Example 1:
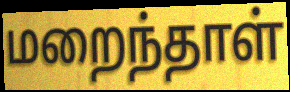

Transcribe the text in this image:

மறைந்தாள்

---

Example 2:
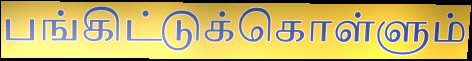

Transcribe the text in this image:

பங்கிட்டுக்கொள்ளும்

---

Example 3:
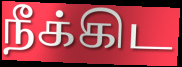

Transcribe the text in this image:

நீக்கிட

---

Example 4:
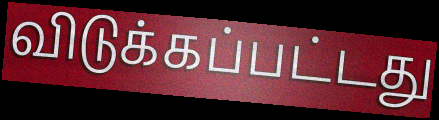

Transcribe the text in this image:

விடுக்கப்பட்டது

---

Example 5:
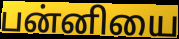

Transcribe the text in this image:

பன்னியை